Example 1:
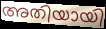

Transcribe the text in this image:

അതിയായി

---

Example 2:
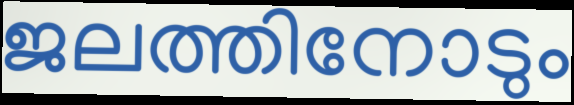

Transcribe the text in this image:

ജലത്തിനോടും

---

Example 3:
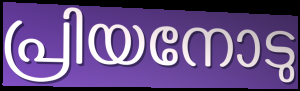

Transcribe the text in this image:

പ്രിയനോടു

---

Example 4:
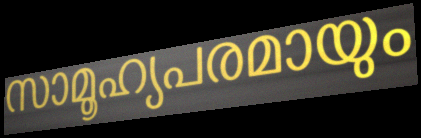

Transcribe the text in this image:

സാമൂഹ്യപരമായും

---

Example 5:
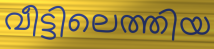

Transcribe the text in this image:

വീട്ടിലെത്തിയ